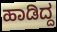
ಹಾಡಿದ್ದ